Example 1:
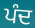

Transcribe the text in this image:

ਪੰਦ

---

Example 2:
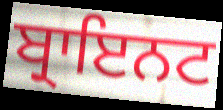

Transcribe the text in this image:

ਬ੍ਰਾਇਨਟ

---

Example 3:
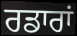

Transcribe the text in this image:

ਰਡਾਰਾਂ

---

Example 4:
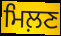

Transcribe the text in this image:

ਮਿਲ਼ਣ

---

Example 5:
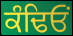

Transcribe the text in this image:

ਕੰਢਿਓਂ